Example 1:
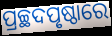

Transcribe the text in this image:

ପ୍ରଚ୍ଛଦପୃଷ୍ଠାରେ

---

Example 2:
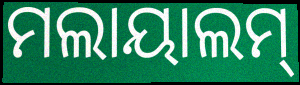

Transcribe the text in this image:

ମଲାୟାଲମ୍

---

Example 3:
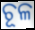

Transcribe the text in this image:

ଚୂଳ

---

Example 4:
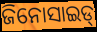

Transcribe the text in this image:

ଜିନୋସାଇଡ୍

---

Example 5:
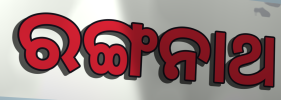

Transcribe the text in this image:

ରଙ୍ଗନାଥ